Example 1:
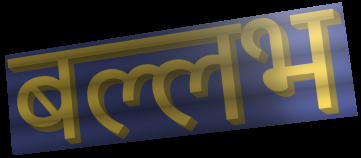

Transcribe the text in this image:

बल्लभ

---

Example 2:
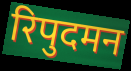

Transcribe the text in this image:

रिपुदमन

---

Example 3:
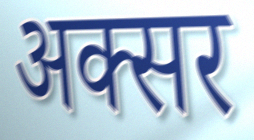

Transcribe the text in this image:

अक्सर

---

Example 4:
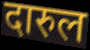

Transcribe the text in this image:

दारुल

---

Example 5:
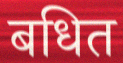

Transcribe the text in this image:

बधित